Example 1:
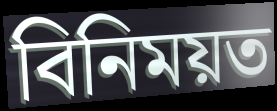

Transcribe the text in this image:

বিনিময়ত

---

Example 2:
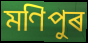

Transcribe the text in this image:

মণিপুৰ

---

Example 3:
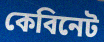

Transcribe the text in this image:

কেবিনেট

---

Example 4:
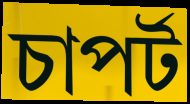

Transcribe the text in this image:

চাপৰ্ট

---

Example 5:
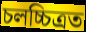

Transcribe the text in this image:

চলচ্চিত্ৰত